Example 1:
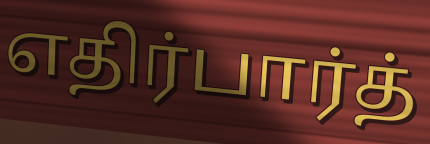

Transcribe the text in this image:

எதிர்பார்த்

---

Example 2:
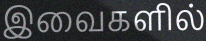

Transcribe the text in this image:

இவைகளில்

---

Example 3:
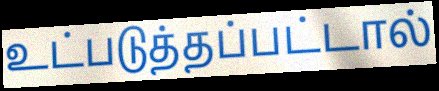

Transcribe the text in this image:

உட்படுத்தப்பட்டால்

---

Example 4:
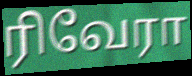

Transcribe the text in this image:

ரிவேரா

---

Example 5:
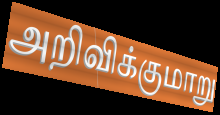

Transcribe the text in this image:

அறிவிக்குமாறு